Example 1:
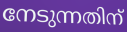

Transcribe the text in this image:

നേടുന്നതിന്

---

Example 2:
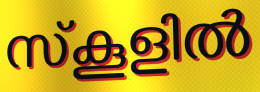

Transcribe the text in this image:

സ്‌കൂളിൽ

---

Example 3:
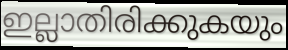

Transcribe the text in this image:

ഇല്ലാതിരിക്കുകയും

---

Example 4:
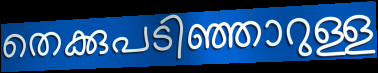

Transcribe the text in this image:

തെക്കുപടിഞ്ഞാറുള്ള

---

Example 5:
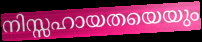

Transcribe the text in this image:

നിസ്സഹായതയെയും